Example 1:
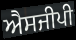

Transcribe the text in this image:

ਐਸਜੀਪੀ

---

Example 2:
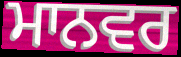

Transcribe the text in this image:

ਮਾਨਵਰ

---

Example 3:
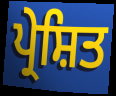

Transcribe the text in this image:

ਪ੍ਰੇਸ਼ਿਤ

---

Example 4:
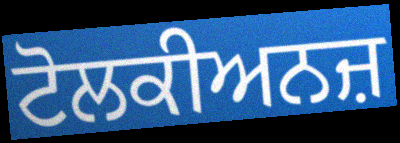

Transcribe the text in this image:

ਟੋਲਕੀਅਨਜ਼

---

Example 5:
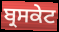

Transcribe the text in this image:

ਬ੍ਰਸਕੇਟ